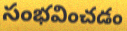
సంభవించడం